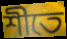
শীতে